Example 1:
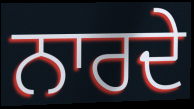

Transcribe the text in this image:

ਨਾਰਦੇ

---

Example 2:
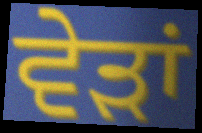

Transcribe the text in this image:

ਵੇੜਾਂ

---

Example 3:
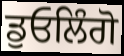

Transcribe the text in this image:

ਡੁਓਲਿੰਗੋ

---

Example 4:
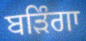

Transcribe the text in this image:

ਬੜਿੰਗਾ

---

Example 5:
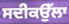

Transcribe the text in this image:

ਸਦੀਕਉੱਲਾ